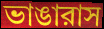
ভাঙারাস